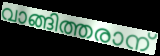
വാങ്ങിത്തരാന്